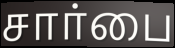
சார்பை